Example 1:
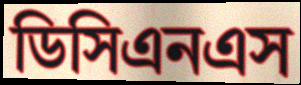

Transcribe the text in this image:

ডিসিএনএস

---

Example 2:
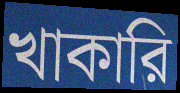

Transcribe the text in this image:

খাকারি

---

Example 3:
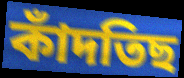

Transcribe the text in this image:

কাঁদতিছ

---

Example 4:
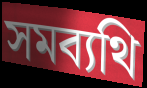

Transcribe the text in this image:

সমব্যথি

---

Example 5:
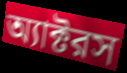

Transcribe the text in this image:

অ্যাক্টরস